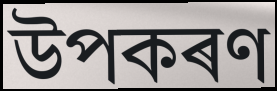
উপকৰণ